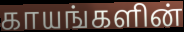
காயங்களின்